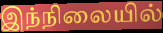
இந்நிலையில்